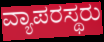
ವ್ಯಾಪರಸ್ಥರು